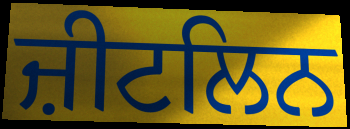
ਜ਼ੀਟਲਿਨ